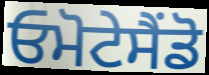
ਓਮੋਟੇਸੈਂਡੋ